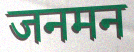
जनमन